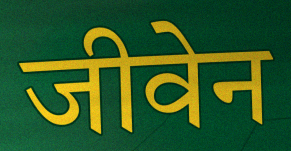
जीवेन